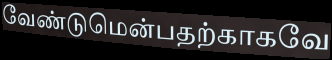
வேண்டுமென்பதற்காகவே